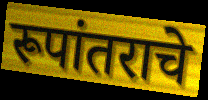
रूपांतराचे